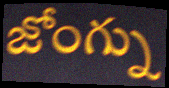
జోంగ్ను